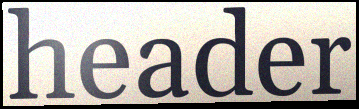
header